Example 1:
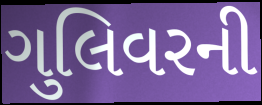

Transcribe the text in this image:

ગુલિવરની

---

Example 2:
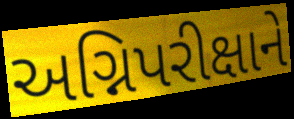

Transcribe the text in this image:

અગ્નિપરીક્ષાને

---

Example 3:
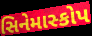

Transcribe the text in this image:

સિનેમાસ્કોપ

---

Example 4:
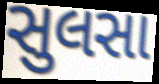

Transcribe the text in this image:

સુલસા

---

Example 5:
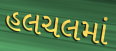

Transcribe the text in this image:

હલચલમાં